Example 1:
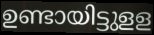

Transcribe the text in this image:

ഉണ്ടായിട്ടുളള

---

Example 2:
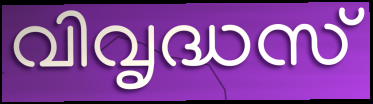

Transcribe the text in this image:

വിവൃദ്ധസ്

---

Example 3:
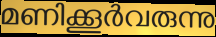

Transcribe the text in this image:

മണിക്കൂർവരുന്നു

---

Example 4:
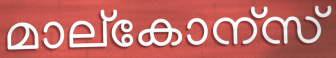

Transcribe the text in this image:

മാല്കോന്സ്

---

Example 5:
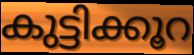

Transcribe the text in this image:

കുട്ടിക്കൂറ